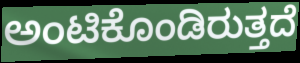
ಅಂಟಿಕೊಂಡಿರುತ್ತದೆ